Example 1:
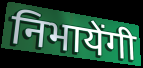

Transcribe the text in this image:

निभायेंगी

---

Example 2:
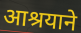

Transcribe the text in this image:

आश्रयाने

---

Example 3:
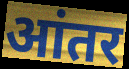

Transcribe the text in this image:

आंतर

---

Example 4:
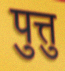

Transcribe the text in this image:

पुत्तु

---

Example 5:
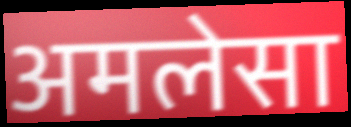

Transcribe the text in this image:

अमलेसा